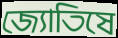
জ্যোতিষে